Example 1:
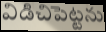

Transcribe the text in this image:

విడిచిపెట్టను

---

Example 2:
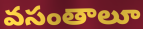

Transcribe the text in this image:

వసంతాలూ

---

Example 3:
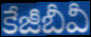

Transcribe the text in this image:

కేజీబీవీ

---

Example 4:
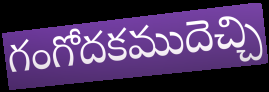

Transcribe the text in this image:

గంగోదకముదెచ్చి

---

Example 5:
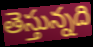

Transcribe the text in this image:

తెస్తున్నది